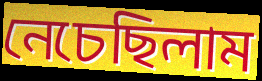
নেচেছিলাম